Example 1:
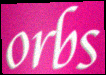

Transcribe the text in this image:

orbs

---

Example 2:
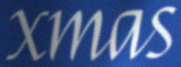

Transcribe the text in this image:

xmas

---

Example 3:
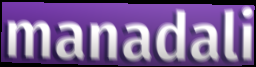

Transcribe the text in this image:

manadali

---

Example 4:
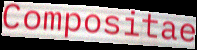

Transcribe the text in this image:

Compositae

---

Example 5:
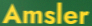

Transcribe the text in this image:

Amsler